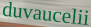
duvaucelii